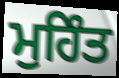
ਮੁਹਿੰਤ